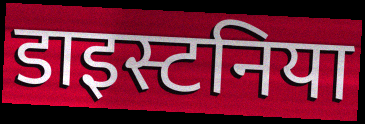
डाइस्टनिया